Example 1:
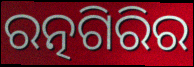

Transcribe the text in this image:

ରତ୍ନଗିରିର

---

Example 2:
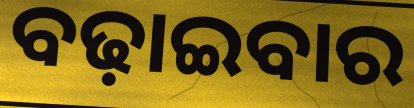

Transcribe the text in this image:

ବଢ଼ାଇବାର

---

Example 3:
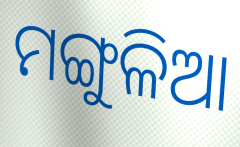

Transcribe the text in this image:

ମଙ୍ଗୁଳିଆ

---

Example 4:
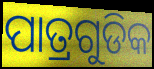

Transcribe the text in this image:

ପାତ୍ରଗୁଡିକ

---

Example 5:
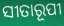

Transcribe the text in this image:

ସୀତାରୂପୀ